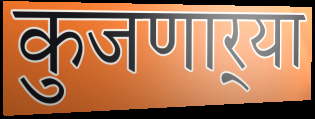
कुजणार्या